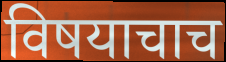
विषयाचाच